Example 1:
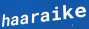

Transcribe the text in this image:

haaraike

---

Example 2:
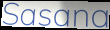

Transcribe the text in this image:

Sasana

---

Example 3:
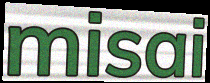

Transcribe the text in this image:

misai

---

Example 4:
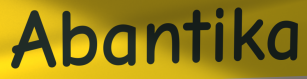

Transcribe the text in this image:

Abantika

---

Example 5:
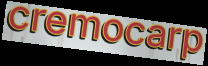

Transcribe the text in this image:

cremocarp